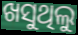
ଖସୁଥିଲୁ